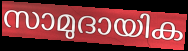
സാമുദായിക